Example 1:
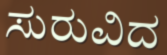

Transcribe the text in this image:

ಸುರುವಿದ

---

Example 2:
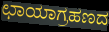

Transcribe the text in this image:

ಛಾಯಾಗ್ರಹಣದ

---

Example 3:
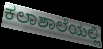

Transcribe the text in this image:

ಕಲಾಶಾಲೆಯಲ್ಲಿ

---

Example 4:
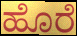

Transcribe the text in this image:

ಹೊರೆ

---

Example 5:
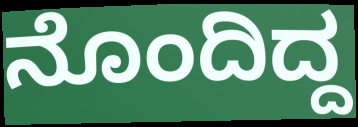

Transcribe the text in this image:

ನೊಂದಿದ್ದ